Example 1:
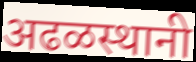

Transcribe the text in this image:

अढळस्थानी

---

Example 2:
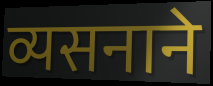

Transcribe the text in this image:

व्यसनाने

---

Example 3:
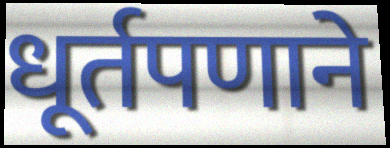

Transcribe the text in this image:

धूर्तपणाने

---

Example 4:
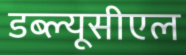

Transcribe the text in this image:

डब्ल्यूसीएल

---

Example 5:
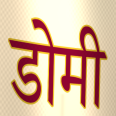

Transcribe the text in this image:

डोमी